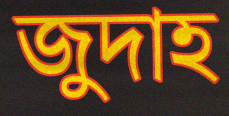
জুদাহ